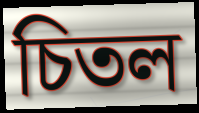
চিতল